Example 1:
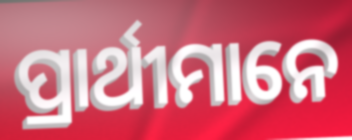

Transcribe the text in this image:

ପ୍ରାର୍ଥୀମାନେ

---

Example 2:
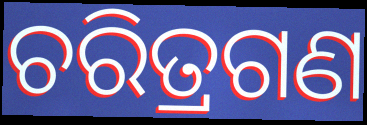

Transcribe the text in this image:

ଚରିତ୍ରଗଣ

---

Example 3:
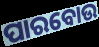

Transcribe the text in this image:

ପାରବୋଉ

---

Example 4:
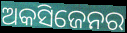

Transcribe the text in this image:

ଅକସିଜେନର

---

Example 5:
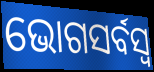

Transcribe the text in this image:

ଭୋଗସର୍ବସ୍ୱ